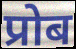
प्रोब